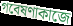
গবেষণাকাজে